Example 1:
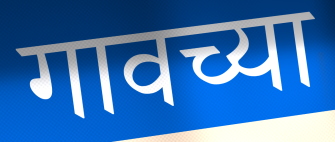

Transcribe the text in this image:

गावच्या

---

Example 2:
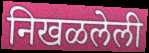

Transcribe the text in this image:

निखळलेली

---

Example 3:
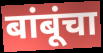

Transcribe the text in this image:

बांबूंचा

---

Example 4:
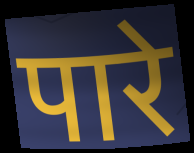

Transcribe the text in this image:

पारे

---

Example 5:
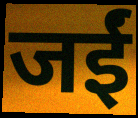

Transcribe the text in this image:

जईं